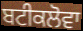
ਬਟੀਕਲੋਵਾ